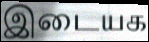
இடையக